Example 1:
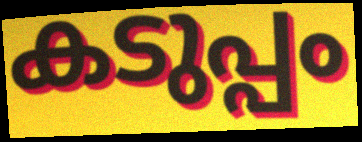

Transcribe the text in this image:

കടുപ്പം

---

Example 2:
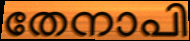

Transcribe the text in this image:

തേനാപി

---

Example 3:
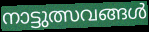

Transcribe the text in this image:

നാട്ടുത്സവങ്ങൾ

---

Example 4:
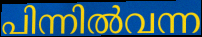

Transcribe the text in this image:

പിന്നിൽവന്ന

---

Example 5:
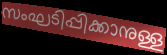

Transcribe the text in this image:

സംഘടിപ്പിക്കാനുള്ള